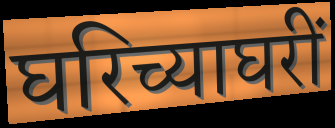
घरिच्याघरीं